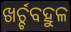
ଖର୍ଚ୍ଚବହୁଳ